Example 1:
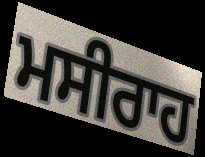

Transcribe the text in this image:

ਮਸੀਰਾਹ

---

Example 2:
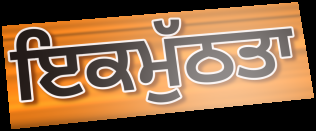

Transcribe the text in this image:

ਇਕਮੁੱਠਤਾ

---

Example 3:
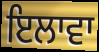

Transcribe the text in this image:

ਇਲਾਵਾ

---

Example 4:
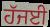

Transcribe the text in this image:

ਹੱਜਈ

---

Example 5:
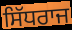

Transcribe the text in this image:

ਸਿੱਧਰਾਜ